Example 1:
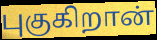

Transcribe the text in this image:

புகுகிறான்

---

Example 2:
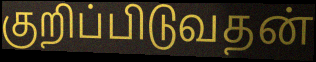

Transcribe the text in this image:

குறிப்பிடுவதன்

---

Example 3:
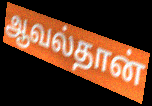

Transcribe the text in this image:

ஆவல்தான்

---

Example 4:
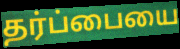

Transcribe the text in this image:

தர்ப்பையை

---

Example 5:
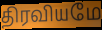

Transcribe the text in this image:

திரவியமே